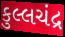
કુલ્લચંદ્ર